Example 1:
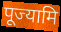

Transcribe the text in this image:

पूज्यामि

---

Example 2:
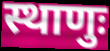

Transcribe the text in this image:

स्थाणुः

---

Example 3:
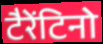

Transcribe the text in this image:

टैरेंटिनो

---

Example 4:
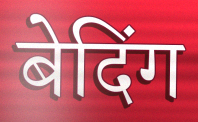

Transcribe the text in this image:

बेदिंग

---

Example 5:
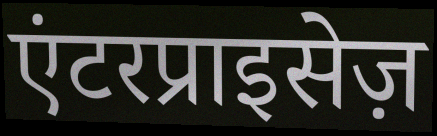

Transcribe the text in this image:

एंटरप्राइसेज़